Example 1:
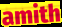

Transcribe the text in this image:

amith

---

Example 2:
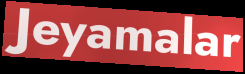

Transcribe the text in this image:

Jeyamalar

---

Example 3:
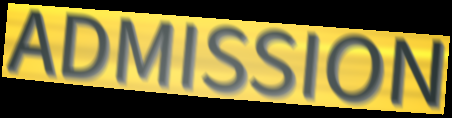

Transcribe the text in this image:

ADMISSION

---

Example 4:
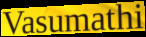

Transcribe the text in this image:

Vasumathi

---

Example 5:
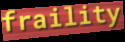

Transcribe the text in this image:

fraility